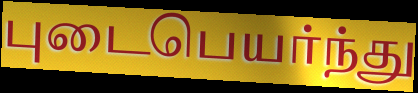
புடைபெயர்ந்து